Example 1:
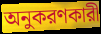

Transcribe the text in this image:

অনুকরণকারী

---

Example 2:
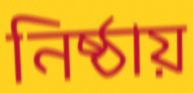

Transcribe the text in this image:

নিষ্ঠায়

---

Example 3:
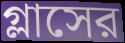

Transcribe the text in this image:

গ্লাসের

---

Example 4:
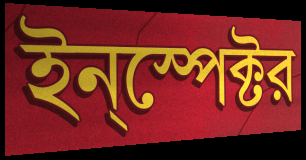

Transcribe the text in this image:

ইন্‌স্পেক্টর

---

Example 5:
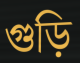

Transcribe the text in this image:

গুড়ি